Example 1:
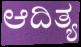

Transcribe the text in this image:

ಆದಿತ್ಯ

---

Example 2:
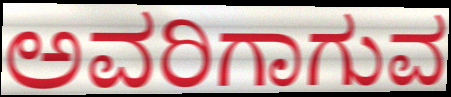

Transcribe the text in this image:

ಅವರಿಗಾಗುವ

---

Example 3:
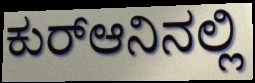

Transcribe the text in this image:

ಕುರ್‍ಆನಿನಲ್ಲಿ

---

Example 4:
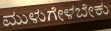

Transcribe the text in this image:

ಮುಳುಗೇಳಬೇಕು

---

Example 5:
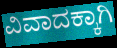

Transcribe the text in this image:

ವಿವಾದಕ್ಕಾಗಿ